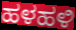
ಹಳಹಳಿ